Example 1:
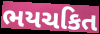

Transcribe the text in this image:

ભયચકિત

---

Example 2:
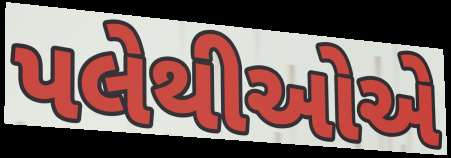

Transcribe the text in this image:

પલેથીઓએ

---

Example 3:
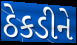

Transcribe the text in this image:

ઠેકડીને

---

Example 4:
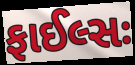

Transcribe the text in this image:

ફાઈલ્સઃ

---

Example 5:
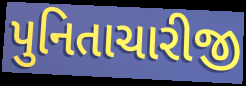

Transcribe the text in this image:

પુનિતાચારીજી